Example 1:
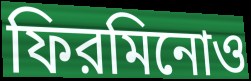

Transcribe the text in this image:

ফিরমিনোও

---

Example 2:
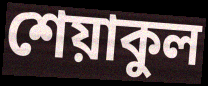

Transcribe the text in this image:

শেয়াকুল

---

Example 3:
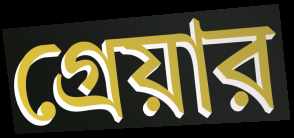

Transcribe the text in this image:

গ্রেয়ার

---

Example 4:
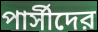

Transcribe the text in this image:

পার্সীদের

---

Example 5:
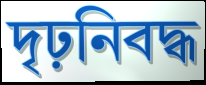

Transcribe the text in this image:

দৃঢ়নিবদ্ধ